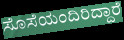
ಸೊಸೆಯಂದಿರಿದ್ದಾರೆ